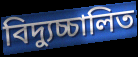
বিদ্যুচ্চালিত